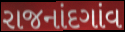
રાજનાંદગાંવ